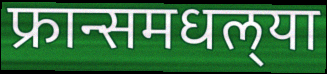
फ्रान्समधल्या